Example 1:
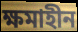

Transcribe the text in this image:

ক্ষমাহীন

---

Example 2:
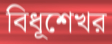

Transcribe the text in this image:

বিধূশেখর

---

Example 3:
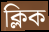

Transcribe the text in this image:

ক্লিক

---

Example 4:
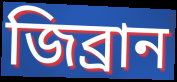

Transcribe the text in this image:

জিব্রান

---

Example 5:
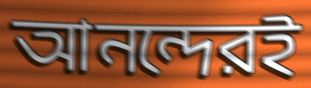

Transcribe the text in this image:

আনন্দেরই